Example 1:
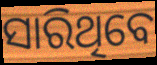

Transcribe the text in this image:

ସାରିଥିବେ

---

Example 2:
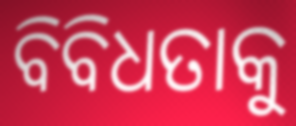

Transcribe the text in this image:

ବିବିଧତାକୁ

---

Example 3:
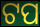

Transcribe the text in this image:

ଟପ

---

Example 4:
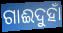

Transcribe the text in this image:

ଗାଈଦୁହାଁ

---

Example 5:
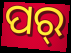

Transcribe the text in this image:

ପର୍